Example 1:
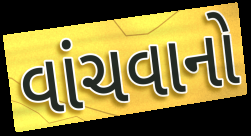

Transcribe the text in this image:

વાંચવાનો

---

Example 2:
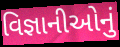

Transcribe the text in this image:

વિજ્ઞાનીઓનું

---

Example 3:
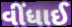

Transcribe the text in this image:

વીંધાઈ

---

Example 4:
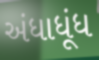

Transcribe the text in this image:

અંધાધૂંધ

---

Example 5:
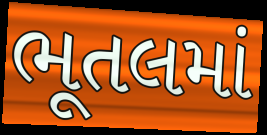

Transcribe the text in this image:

ભૂતલમાં